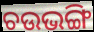
ଚଉଭଙ୍ଗି